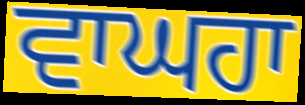
ਵਾਘਹਾ